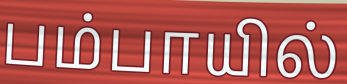
பம்பாயில்